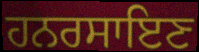
ਹਨਰਸਾਇਣ